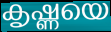
കൃഷ്ണയെ